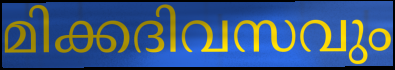
മിക്കദിവസവും